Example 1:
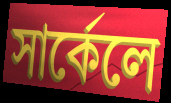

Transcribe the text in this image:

সার্কেলে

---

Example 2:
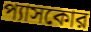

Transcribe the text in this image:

প্যাসকোর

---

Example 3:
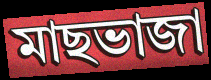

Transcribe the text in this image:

মাছভাজা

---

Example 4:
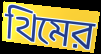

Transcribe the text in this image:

থিমের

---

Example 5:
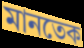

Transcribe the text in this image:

মানতেক